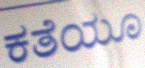
ಕತೆಯೂ